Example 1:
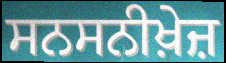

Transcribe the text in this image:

ਸਨਸਨੀਖ਼ੇਜ਼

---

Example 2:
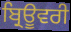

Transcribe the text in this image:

ਬ੍ਰਿਊਵਰੀ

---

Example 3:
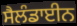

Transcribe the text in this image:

ਸੈਲੰਡਾਈਨ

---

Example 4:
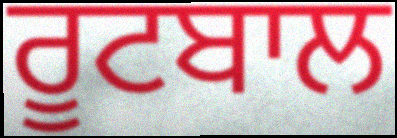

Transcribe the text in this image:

ਰੂਟਬਾਲ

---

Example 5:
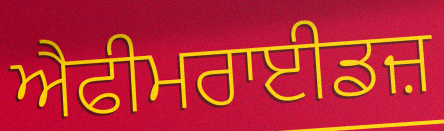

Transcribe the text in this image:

ਐਫੀਮਰਾਈਡਜ਼